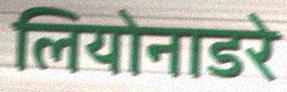
लियोनाडरे